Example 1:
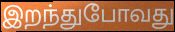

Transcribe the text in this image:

இறந்துபோவது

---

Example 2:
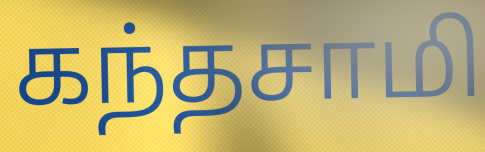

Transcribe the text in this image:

கந்தசாமி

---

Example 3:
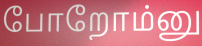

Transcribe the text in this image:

போறோம்னு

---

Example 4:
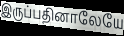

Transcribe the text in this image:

இருப்பதினாலேயே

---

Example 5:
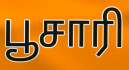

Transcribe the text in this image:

பூசாரி